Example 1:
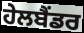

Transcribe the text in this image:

ਹੇਲਬੈਂਡਰ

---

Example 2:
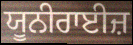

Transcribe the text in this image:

ਯੂਨੀਰਾਈਜ਼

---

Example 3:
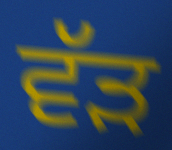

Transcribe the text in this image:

ਵੱੜ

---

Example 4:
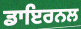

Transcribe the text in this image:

ਡਾਇਰਨਲ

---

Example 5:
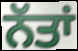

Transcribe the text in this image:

ਨੱਤਾਂ